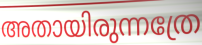
അതായിരുന്നത്രേ